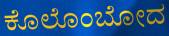
ಕೊಲೊಂಬೋದ